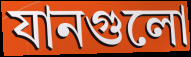
যানগুলো